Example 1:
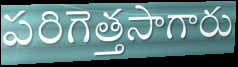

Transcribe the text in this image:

పరిగెత్తసాగారు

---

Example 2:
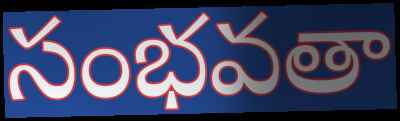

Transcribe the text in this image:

సంభవతా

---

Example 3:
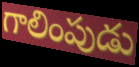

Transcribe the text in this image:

గాలింపుడు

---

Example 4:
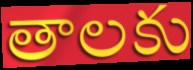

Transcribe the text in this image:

తాలకు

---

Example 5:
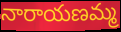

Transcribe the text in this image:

నారాయణమ్మ